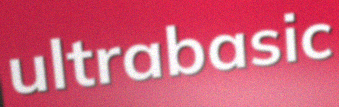
ultrabasic